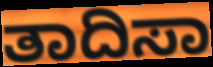
ತಾದಿಸಾ